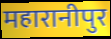
महारानीपुर